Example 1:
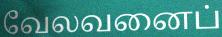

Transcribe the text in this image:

வேலவனைப்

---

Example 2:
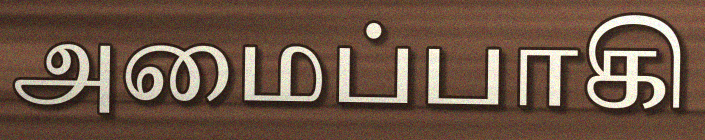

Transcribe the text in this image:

அமைப்பாகி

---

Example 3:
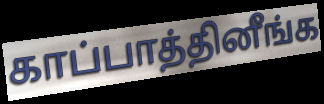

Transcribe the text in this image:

காப்பாத்தினீங்க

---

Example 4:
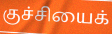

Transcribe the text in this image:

குச்சியைக்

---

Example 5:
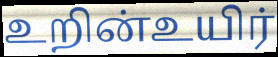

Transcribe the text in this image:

உறின்உயிர்